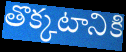
తొక్కటానికి